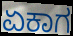
ಏಕಾಗ